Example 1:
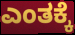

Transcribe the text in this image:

ಎಂತಕ್ಕೆ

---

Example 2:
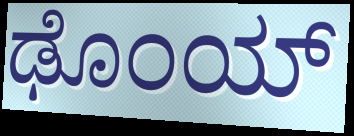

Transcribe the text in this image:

ಢೊಂಯ್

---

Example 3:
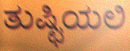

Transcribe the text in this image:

ತುಷ್ಟಿಯಲಿ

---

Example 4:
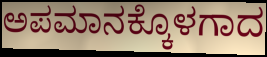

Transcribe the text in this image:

ಅಪಮಾನಕ್ಕೊಳಗಾದ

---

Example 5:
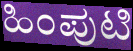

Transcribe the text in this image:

ಹಿಂಪುಟಿ